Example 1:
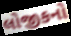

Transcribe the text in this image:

લોજીકનો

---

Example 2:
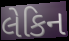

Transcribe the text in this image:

લેકિન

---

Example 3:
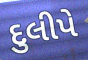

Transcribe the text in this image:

દુલીપે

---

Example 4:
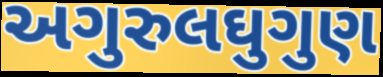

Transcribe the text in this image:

અગુરુલઘુગુણ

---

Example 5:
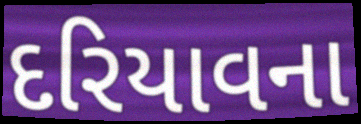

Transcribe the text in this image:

દરિયાવના